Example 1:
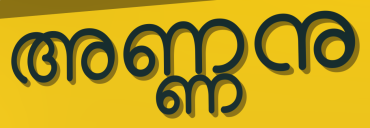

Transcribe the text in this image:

അണ്ണനു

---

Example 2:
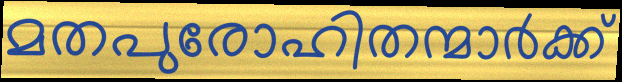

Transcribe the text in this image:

മതപുരോഹിതന്മാർക്ക്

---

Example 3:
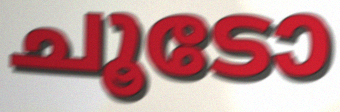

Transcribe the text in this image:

ചൂടോ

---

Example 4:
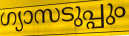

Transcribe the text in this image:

ഗ്യാസടുപ്പും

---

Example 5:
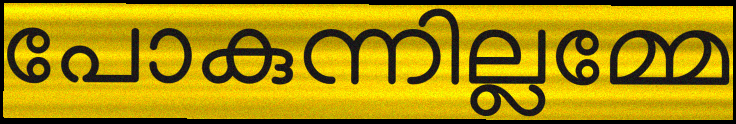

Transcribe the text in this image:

പോകുന്നില്ലമ്മേ